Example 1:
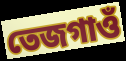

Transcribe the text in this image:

তেজগাওঁ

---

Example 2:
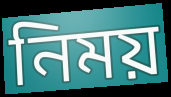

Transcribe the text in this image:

নিময়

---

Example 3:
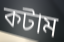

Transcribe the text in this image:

কটাম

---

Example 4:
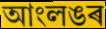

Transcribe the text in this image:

আংলঙৰ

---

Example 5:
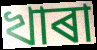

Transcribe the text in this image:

খাৰা